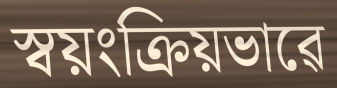
স্বয়ংক্ৰিয়ভাৱে